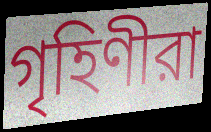
গৃহিণীরা